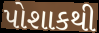
પોશાકથી